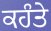
ਕਹੰਤੇ